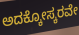
ಅದಕ್ಕೋಸ್ಕರವೇ